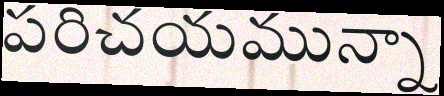
పరిచయమున్నా